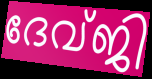
ദേവ്ജി